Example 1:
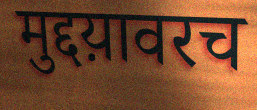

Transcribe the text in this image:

मुद्दय़ावरच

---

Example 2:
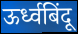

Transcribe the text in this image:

ऊर्ध्वबिंदू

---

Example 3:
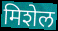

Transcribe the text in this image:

मिशेल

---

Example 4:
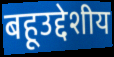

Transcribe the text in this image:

बहूउद्देशीय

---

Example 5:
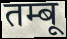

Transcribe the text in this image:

तम्बू